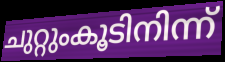
ചുറ്റുംകൂടിനിന്ന്